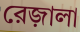
রেজ়ালা